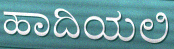
ಹಾದಿಯಲಿ